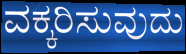
ವಕ್ಕರಿಸುವುದು